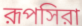
রূপসিরা